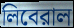
লিবেরাল